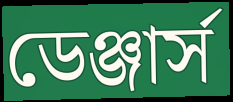
ডেঞ্জার্স